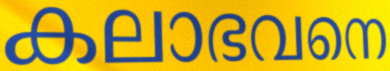
കലാഭവനെ